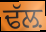
ਢੱਲ਼